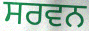
ਸਰਵਨ